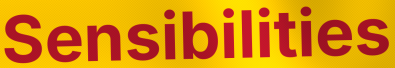
Sensibilities